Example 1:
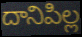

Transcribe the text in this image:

దానిపిల్ల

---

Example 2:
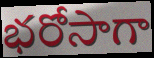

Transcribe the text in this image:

భరోసాగా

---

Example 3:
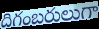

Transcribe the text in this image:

దిగంబరులుగా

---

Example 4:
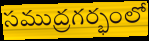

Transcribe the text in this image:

సముద్రగర్భంలో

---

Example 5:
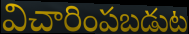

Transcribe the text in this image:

విచారింపబడుట